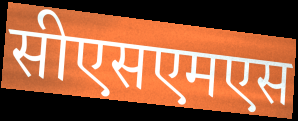
सीएसएमएस